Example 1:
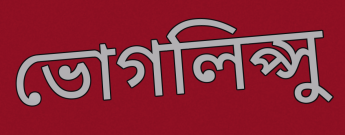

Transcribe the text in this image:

ভোগলিপ্সু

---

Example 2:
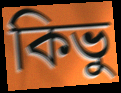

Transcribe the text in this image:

কিভু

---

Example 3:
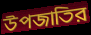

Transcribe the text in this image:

উপজাতির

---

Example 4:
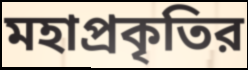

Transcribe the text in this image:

মহাপ্রকৃতির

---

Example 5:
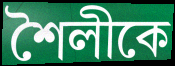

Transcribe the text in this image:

শৈলীকে